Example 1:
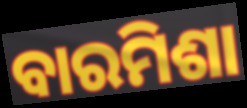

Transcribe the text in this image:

ବାରମିଶା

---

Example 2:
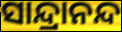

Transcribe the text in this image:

ସାନ୍ଦ୍ରାନନ୍ଦ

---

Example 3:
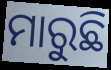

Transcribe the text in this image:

ମାରୁଛି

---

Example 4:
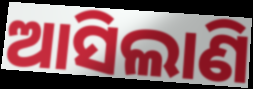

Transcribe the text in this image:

ଆସିଲାଣି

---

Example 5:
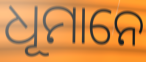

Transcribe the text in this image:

ଧୂମାନେ